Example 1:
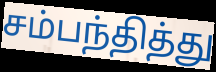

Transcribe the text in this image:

சம்பந்தித்து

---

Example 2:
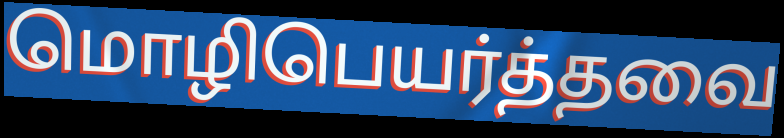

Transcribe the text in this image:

மொழிபெயர்த்தவை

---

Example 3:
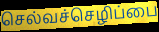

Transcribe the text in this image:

செல்வச்செழிப்பை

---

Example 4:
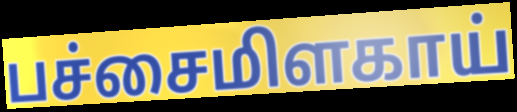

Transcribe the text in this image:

பச்சைமிளகாய்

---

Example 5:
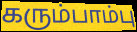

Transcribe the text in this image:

கரும்பாம்பு